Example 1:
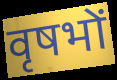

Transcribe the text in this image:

वृषभों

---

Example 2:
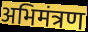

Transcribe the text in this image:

अभिमंत्रण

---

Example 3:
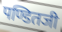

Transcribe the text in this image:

पण्डितजी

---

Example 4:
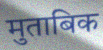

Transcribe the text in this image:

मुताबिक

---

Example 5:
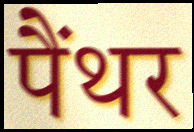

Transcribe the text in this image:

पैंथर